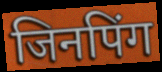
जिनपिंग